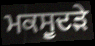
ਮਕਸੂਦੜੇ